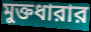
মুক্তধারার